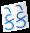
કેકે